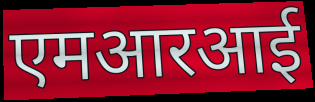
एमआरआई